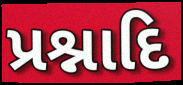
પ્રશ્નાદિ